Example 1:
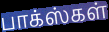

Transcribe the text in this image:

பாக்ஸ்கள்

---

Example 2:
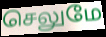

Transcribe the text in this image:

செலுமே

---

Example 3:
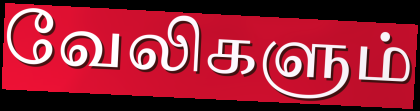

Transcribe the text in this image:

வேலிகளும்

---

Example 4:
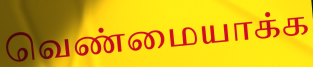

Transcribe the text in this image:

வெண்மையாக்க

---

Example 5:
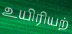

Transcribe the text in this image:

உயிரியற்